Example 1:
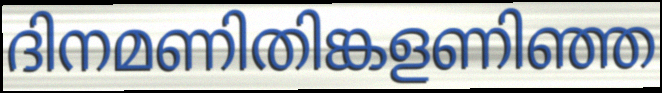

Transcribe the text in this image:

ദിനമണിതിങ്കളണിഞ്ഞ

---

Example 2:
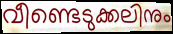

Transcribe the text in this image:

വീണ്ടെടുക്കലിനും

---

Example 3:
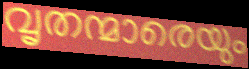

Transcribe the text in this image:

വൃതന്മാരെയും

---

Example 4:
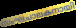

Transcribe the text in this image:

സംഘചാലകനായി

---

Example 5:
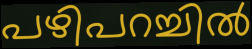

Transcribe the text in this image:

പഴിപറച്ചിൽ